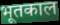
भूतकाल